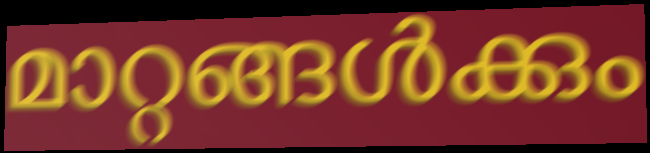
മാറ്റങ്ങൾക്കും